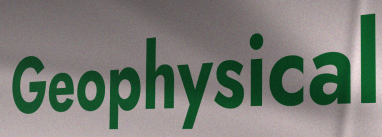
Geophysical